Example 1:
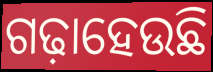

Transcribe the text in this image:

ଗଢ଼ାହେଉଛି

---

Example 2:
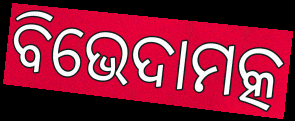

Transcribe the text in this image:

ବିଭେଦାମତ୍କ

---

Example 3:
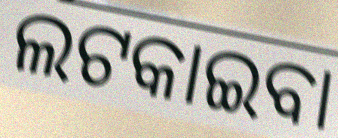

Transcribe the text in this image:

ଲଟକାଇବା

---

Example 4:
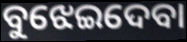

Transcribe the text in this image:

ବୁଝେଇଦେବା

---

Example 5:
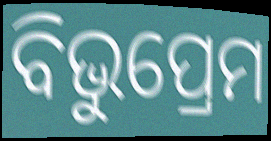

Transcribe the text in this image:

ବିଭୁପ୍ରେମ